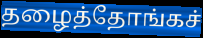
தழைத்தோங்கச்